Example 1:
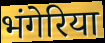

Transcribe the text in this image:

भंगेरिया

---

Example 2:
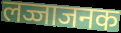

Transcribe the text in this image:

लज्जाजनक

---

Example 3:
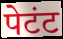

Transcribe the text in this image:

पेटंट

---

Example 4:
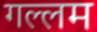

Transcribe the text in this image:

गल्लम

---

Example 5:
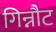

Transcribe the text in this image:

गिन्नौट